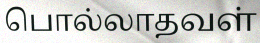
பொல்லாதவள்